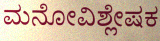
ಮನೋವಿಶ್ಲೇಷಕ